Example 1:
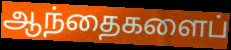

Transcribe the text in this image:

ஆந்தைகளைப்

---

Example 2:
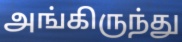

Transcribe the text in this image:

அங்கிருந்து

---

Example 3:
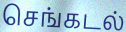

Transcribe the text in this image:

செங்கடல்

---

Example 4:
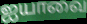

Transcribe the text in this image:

ஐயாவை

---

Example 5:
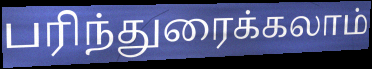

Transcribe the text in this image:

பரிந்துரைக்கலாம்